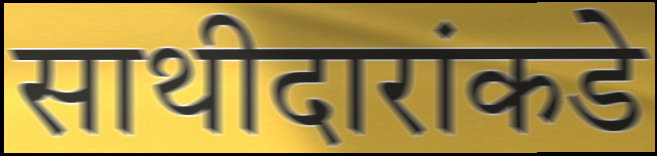
साथीदारांकडे